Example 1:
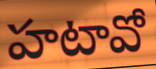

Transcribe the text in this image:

హటావో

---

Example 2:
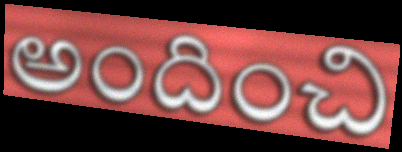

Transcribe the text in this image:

అందించి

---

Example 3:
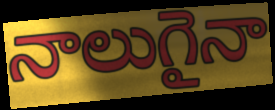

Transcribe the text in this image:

నాలుగైనా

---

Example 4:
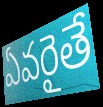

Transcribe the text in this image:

ఏవరైతే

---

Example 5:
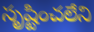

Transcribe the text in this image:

సృష్టించలేని